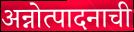
अन्नोत्पादनाची